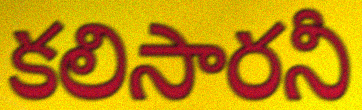
కలిసారనీ